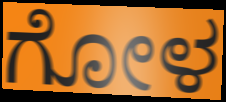
ಗೋಳ